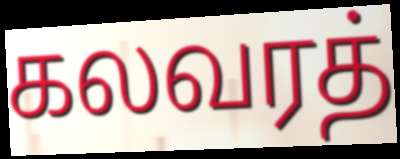
கலவரத்